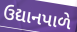
ઉદ્યાનપાળે